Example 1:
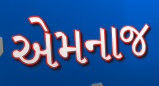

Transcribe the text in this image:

એમનાજ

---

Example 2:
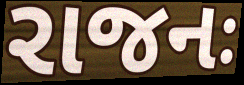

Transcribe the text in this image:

રાજનઃ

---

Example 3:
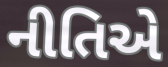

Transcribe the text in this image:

નીતિએ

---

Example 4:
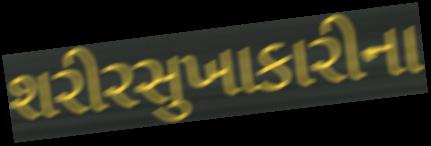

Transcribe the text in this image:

શરીરસુખાકારીના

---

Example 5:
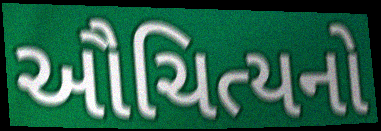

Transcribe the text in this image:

ઔચિત્યનો